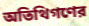
অতিথিগণের